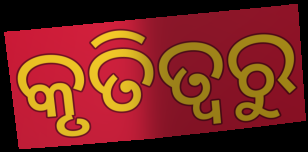
କୃତିତ୍ଵରୁ